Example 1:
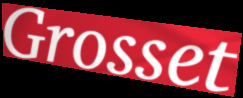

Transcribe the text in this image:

Grosset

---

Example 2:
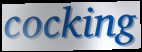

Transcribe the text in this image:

cocking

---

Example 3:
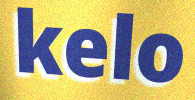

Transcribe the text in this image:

kelo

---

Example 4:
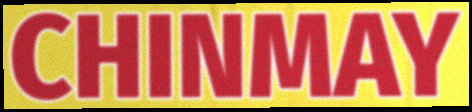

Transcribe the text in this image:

CHINMAY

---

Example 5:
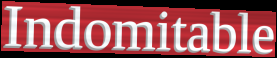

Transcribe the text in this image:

Indomitable